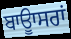
ਬਾਊਾਸਰਾਂ